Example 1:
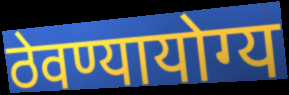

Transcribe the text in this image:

ठेवण्यायोग्य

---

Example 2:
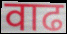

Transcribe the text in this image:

वाढ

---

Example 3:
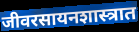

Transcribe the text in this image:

जीवरसायनशास्त्रात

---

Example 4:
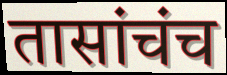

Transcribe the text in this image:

तासांचंच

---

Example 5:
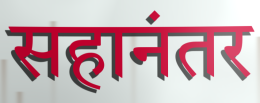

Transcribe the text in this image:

सहानंतर